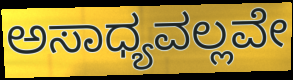
ಅಸಾಧ್ಯವಲ್ಲವೇ